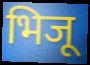
भिजू